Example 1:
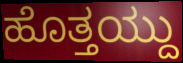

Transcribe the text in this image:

ಹೊತ್ತಯ್ದು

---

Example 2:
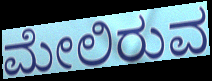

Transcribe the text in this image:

ಮೇಲಿರುವ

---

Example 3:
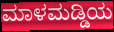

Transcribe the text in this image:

ಮಾಳಮಡ್ಡಿಯ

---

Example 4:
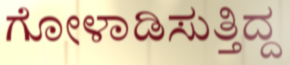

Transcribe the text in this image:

ಗೋಳಾಡಿಸುತ್ತಿದ್ದ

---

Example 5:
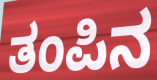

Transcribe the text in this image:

ತಂಪಿನ